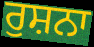
ਰੁਸ਼ਨਾ